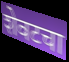
शेवटचा